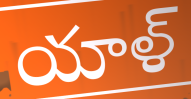
యాళ్